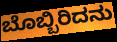
ಬೊಬ್ಬಿರಿದನು